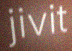
jivit